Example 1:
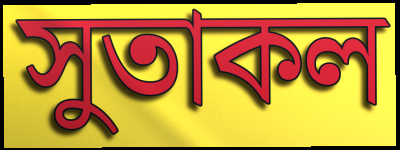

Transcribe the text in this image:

সুতাকল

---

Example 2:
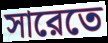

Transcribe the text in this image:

সারেতে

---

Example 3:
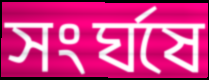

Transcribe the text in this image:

সংর্ঘষে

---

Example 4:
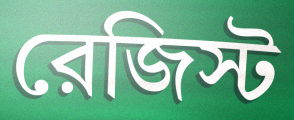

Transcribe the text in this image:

রেজিস্ট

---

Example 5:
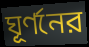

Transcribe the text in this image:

ঘূর্ণনের